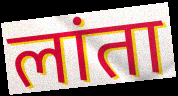
लांता